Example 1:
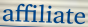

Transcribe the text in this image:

affiliate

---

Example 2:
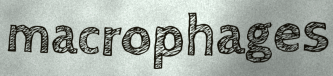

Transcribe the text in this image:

macrophages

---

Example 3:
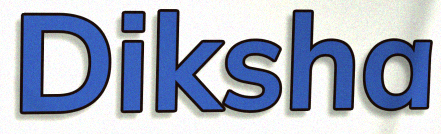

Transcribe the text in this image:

Diksha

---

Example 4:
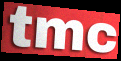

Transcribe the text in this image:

tmc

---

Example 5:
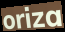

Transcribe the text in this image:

oriza